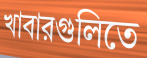
খাবারগুলিতে